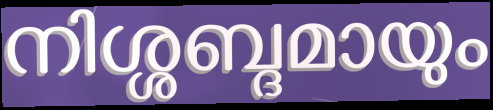
നിശ്ശബ്ദമായും